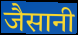
जैसानी